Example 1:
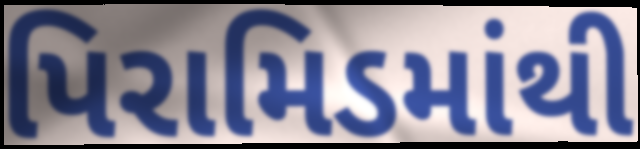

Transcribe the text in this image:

પિરામિડમાંથી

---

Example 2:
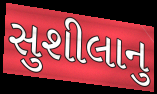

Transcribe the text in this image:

સુશીલાનુ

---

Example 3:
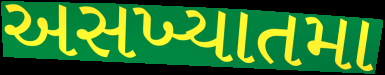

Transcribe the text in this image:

અસખ્યાતમા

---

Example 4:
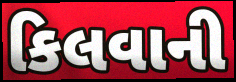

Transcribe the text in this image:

કિલવાની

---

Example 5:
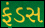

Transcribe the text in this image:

ફંડસ